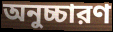
অনুচ্চারণ